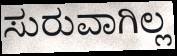
ಸುರುವಾಗಿಲ್ಲ